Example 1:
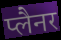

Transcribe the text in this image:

प्लैनर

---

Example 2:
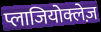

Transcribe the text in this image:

प्लाजियोक्लेज़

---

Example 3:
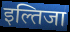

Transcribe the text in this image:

इल्तिजा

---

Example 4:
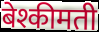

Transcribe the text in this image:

बेश्कीमती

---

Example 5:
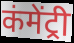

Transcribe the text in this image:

कंमेंट्री